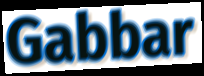
Gabbar